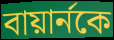
বায়ার্নকে